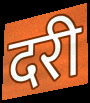
दरी